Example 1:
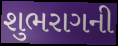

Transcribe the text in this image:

શુભરાગની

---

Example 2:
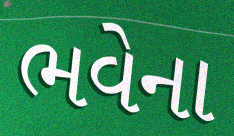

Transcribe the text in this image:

ભવેના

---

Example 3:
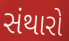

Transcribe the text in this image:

સંથારો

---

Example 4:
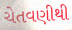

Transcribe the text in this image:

ચેતવણીથી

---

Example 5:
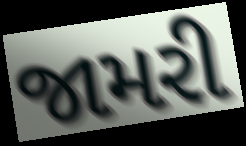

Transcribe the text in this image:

જામરી